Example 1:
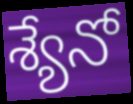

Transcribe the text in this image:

శ్యేనో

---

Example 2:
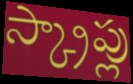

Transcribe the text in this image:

స్క్రాప్లు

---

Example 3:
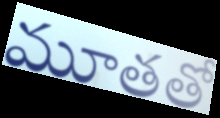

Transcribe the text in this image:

మూతతో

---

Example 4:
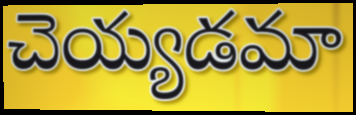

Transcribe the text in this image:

చెయ్యడమా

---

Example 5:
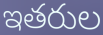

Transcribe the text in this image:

ఇతరుల